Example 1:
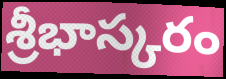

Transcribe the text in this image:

శ్రీభాస్కరం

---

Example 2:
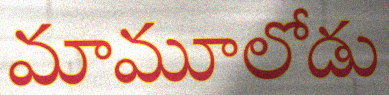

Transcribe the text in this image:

మామూలోడు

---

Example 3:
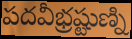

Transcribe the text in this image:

పదవీభ్రష్టుణ్ని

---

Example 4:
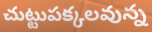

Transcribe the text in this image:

చుట్టుపక్కలవున్న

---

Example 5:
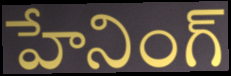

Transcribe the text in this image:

హేనింగ్